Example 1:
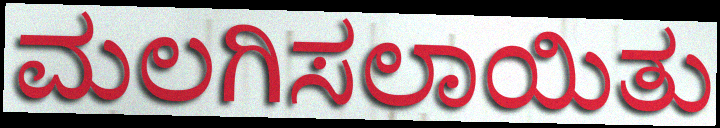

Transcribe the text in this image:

ಮಲಗಿಸಲಾಯಿತು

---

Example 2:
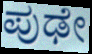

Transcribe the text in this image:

ಪುಢೇ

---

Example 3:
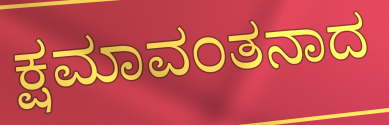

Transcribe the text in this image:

ಕ್ಷಮಾವಂತನಾದ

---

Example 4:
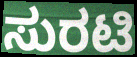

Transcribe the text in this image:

ಸುರಟಿ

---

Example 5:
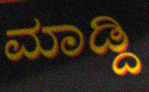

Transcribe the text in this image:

ಮಾಡ್ದಿ